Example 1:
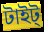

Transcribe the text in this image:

টাইট্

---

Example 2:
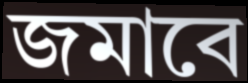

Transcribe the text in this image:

জমাবে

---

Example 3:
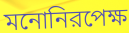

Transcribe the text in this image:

মনোনিরপেক্ষ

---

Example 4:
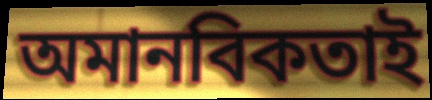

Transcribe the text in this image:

অমানবিকতাই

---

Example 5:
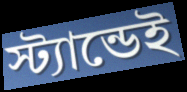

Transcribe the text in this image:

স্ট্যান্ডেই